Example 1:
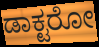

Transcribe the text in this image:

ಡಾಕ್ಟರೋ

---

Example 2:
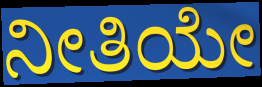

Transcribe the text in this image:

ನೀತಿಯೇ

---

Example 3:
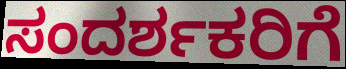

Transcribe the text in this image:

ಸಂದರ್ಶಕರಿಗೆ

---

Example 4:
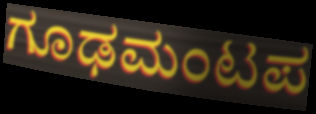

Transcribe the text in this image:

ಗೂಢಮಂಟಪ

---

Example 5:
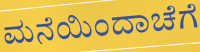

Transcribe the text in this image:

ಮನೆಯಿಂದಾಚೆಗೆ